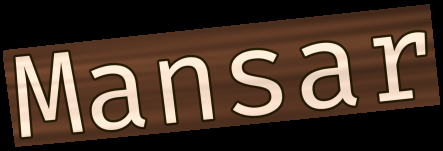
Mansar